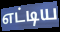
எட்டிய